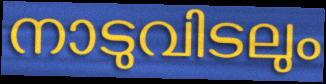
നാടുവിടലും